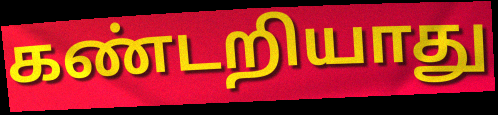
கண்டறியாது